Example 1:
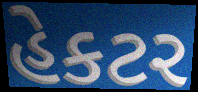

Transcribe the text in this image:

હેકટર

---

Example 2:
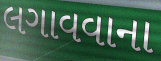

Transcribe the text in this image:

લગાવવાના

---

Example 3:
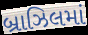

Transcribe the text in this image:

બ્રાઝિલમાં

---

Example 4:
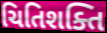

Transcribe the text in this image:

ચિતિશક્તિ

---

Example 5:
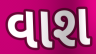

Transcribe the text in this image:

વાશ